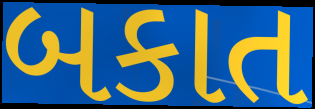
બકાત